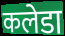
कलेडा